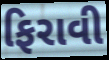
ફિરાવી